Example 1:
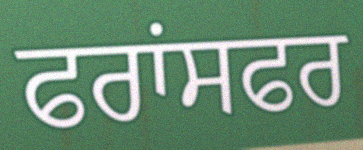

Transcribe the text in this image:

ਫਰਾਂਸਫਰ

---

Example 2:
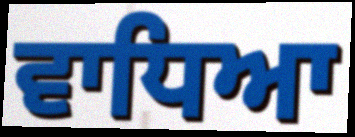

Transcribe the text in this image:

ਵਾਧਿਆ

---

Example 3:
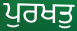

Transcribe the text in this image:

ਪੁਰਖਤੁ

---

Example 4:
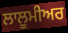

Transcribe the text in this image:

ਲਾਲੂਮੀਅਰ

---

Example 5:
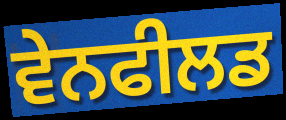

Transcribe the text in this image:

ਵੇਨਫੀਲਡ